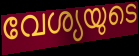
വേശ്യയുടെ